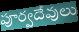
పూర్వదేవులు